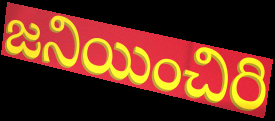
జనియించిరి